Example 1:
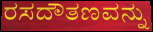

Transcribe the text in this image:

ರಸದೌತಣವನ್ನು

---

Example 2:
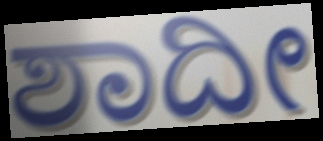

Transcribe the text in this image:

ಶಾದೀ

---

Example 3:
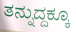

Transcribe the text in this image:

ತನ್ನುದ್ದಕ್ಕೂ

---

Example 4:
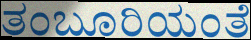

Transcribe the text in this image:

ತಂಬೂರಿಯಂತೆ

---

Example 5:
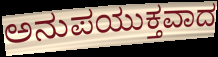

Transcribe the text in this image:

ಅನುಪಯುಕ್ತವಾದ